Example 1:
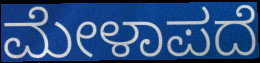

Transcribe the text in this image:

ಮೇಳಾಪದೆ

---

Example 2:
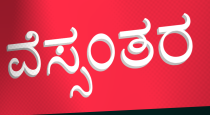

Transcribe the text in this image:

ವೆಸ್ಸಂತರ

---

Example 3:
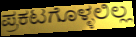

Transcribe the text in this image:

ಪ್ರಕಟಗೊಳ್ಳಲಿಲ್ಲ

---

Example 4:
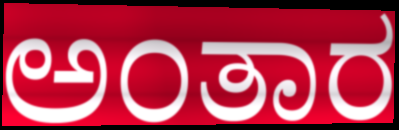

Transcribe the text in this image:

ಅಂತಾರ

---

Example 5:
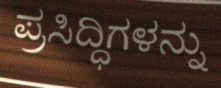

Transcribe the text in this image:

ಪ್ರಸಿದ್ಧಿಗಳನ್ನು